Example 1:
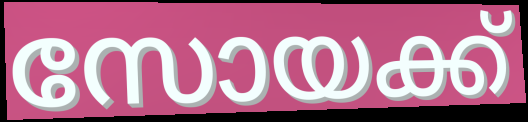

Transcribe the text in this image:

സോയക്ക്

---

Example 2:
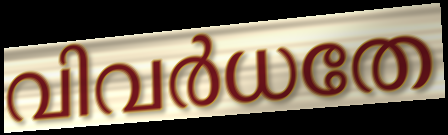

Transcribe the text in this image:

വിവർധതേ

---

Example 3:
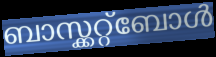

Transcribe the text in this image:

ബാസ്ക്കറ്റ്ബോൾ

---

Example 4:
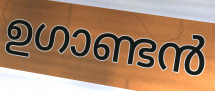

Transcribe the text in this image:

ഉഗാണ്ടൻ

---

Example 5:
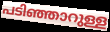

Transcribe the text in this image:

പടിഞ്ഞാറുള്ള